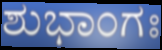
ಶುಭಾಂಗಃ